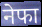
नेफा